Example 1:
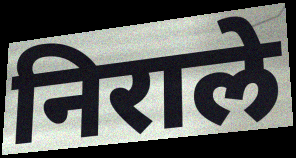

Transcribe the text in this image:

निराले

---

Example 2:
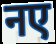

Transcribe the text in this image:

नए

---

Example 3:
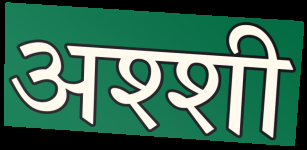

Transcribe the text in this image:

अश्शी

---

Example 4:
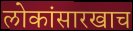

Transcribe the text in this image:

लोकांसारखाच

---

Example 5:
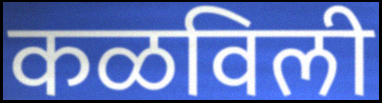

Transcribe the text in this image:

कळविली